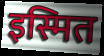
इस्मित